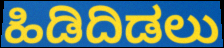
ಹಿಡಿದಿಡಲು